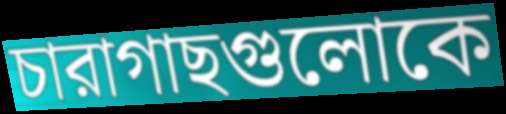
চারাগাছগুলোকে